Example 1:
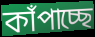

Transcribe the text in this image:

কাঁপাচ্ছে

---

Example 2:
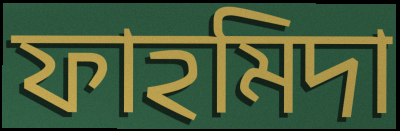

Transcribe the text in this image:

ফাহমিদা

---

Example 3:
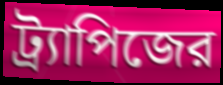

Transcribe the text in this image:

ট্র্যাপিজের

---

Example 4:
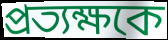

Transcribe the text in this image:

প্রত্যক্ষকে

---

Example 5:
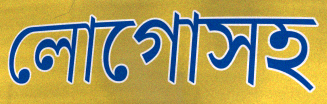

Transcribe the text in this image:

লোগোসহ